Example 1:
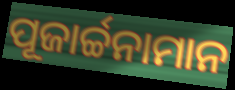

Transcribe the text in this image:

ପୂଜାର୍ଚ୍ଚନାମାନ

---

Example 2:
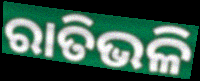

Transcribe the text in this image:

ରାତିଭଳି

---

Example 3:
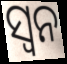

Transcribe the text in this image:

ସ୍ୱନ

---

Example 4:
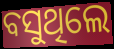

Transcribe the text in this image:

ବସୁଥିଲେ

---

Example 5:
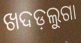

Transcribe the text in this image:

ଖଦଡ଼ଲୁଗା